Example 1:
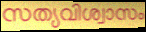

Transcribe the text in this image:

സത്യവിശ്വാസം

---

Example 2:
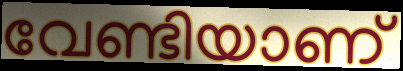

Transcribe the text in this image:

വേണ്ടിയാണ്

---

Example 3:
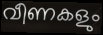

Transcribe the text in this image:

വീണകളും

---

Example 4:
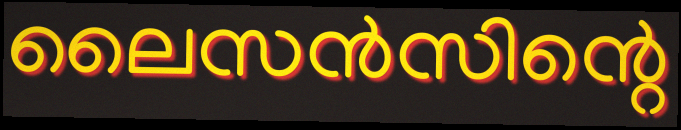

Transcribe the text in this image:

ലൈസൻസിന്റെ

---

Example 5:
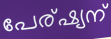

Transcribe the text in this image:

പേര്ഷ്യന്